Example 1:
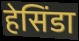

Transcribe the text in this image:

हेसिंडा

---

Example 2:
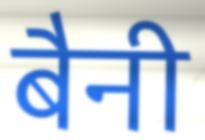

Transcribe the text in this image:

बैनी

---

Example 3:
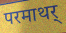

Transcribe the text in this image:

परमाथर्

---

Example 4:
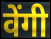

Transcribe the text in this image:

वेंगी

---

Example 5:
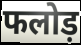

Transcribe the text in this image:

फलोड़